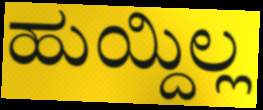
ಹುಯ್ದಿಲ್ಲ